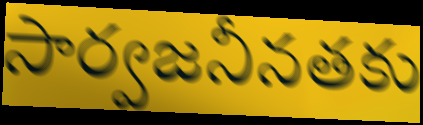
సార్వజనీనతకు